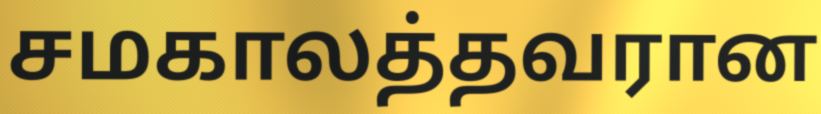
சமகாலத்தவரான